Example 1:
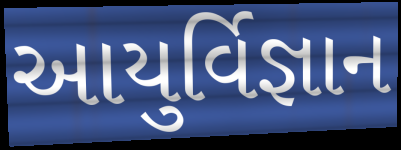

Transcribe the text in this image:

આયુર્વિજ્ઞાન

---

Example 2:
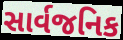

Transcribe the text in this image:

સાર્વજનિક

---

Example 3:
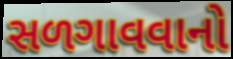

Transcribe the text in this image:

સળગાવવાનો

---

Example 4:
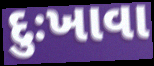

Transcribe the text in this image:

દુઃખાવા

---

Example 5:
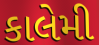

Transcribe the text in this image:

કાલેમી